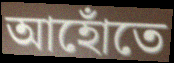
আহোঁতে